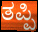
ತಪ್ಪಿ